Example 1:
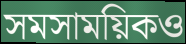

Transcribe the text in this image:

সমসাময়িকও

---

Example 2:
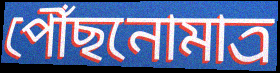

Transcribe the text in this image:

পৌঁছনোমাত্র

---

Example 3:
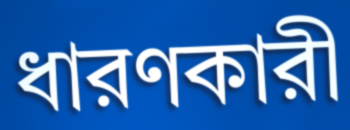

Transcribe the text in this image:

ধারণকারী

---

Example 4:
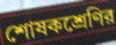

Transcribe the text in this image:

শোষকশ্রেণির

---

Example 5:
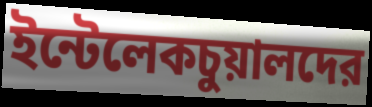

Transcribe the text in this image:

ইন্টেলেকচুয়ালদের